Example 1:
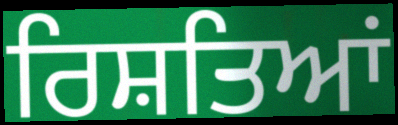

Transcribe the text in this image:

ਰਿਸ਼ਤਿਆਂ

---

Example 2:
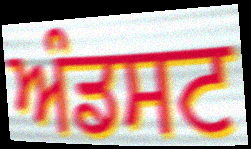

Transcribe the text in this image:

ਅੰਡਸਟ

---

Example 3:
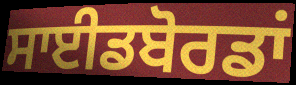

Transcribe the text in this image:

ਸਾਈਡਬੋਰਡਾਂ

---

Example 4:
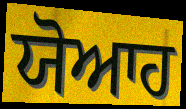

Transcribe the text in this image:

ਯੋਆਹ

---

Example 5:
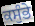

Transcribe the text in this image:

ਕਸੁੰਭੇ